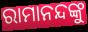
ରାମାନନ୍ଦଙ୍କୁ